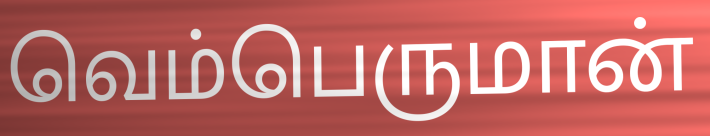
வெம்பெருமான்